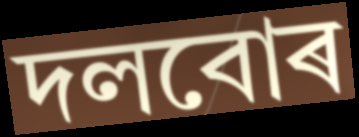
দলবোৰ